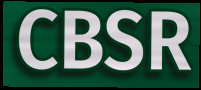
CBSR